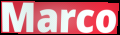
Marco